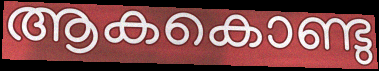
ആകകൊണ്ടു